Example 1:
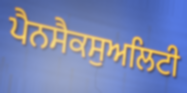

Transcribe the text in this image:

ਪੈਨਸੈਕਸੁਅਲਿਟੀ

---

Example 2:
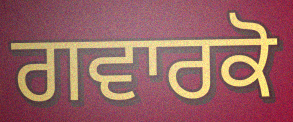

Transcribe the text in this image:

ਗਵਾਰਕੋ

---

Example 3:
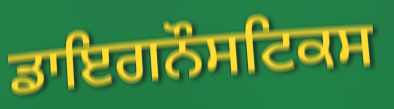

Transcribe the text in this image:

ਡਾਇਗਨੌਸਟਿਕਸ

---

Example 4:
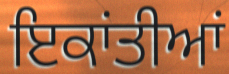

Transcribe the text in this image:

ਇਕਾਂਤੀਆਂ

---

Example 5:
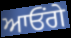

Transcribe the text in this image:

ਆਓਂਗੇ